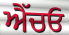
ਐੱਚਓ